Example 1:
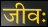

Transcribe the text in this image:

जीवः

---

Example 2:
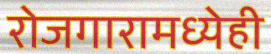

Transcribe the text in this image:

रोजगारामध्येही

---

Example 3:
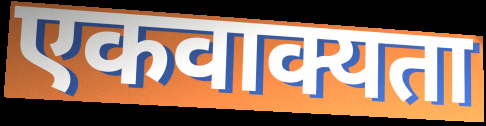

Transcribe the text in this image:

एकवाक्यता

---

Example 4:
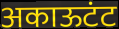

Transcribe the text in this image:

अकाऊटंट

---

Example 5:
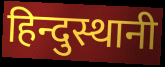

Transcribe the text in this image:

हिन्दुस्थानी